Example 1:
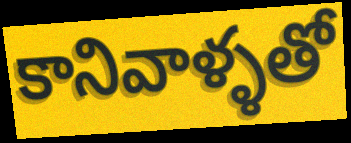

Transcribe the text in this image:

కానివాళ్ళతో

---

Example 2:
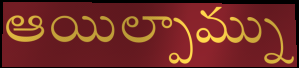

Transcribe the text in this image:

ఆయిల్పామ్ను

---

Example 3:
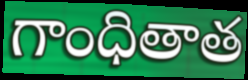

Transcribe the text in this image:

గాంధితాత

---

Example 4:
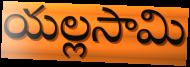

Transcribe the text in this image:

యల్లసామి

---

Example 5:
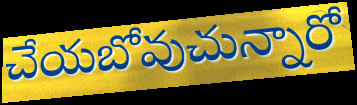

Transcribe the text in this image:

చేయబోవుచున్నారో